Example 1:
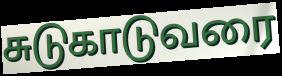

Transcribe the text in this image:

சுடுகாடுவரை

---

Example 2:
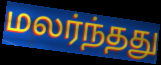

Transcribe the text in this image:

மலர்ந்தது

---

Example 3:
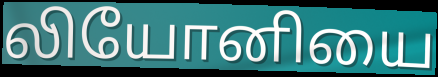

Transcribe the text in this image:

லியோனியை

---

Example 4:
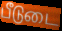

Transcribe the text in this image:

பீடுடை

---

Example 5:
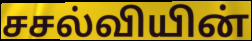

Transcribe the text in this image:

சசல்வியின்